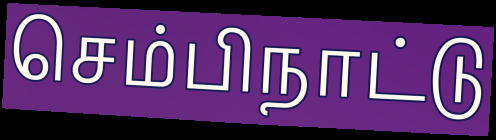
செம்பிநாட்டு